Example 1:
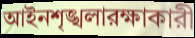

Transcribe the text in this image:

আইনশৃঙ্খলারক্ষাকারী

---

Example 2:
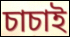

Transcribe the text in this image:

চাচাই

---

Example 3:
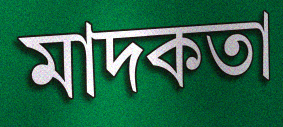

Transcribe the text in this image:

মাদকতা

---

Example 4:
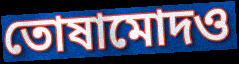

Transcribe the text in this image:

তোষামোদও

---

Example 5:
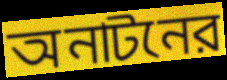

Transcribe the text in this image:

অনাটনের